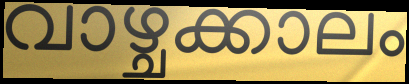
വാഴ്ചക്കാലം